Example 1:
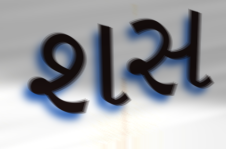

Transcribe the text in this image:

શસ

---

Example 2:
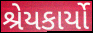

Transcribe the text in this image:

શ્રેયકાર્યો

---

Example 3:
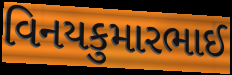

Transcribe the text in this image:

વિનયકુમારભાઈ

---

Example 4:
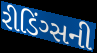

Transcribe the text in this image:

રીડિંગ્સની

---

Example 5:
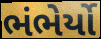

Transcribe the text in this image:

ભંભેર્યો